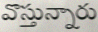
వొస్తున్నారు